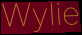
Wylie